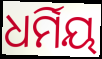
ଧର୍ମିୟ